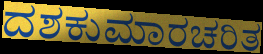
ದಶಕುಮಾರಚರಿತ